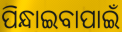
ପିନ୍ଧାଇବାପାଇଁ